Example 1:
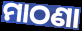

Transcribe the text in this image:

ମାଠଣା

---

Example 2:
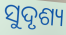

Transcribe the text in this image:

ସୁଦୃଶ୍ୟ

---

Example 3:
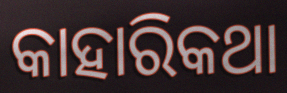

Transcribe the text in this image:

କାହାରିକଥା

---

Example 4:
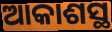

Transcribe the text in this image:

ଆକାଶସ୍ଥ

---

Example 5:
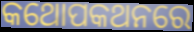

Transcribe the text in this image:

କଥୋପକଥନରେ